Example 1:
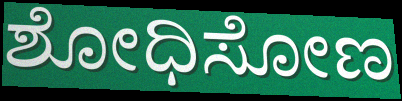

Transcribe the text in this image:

ಶೋಧಿಸೋಣ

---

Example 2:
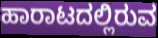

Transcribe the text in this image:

ಹಾರಾಟದಲ್ಲಿರುವ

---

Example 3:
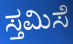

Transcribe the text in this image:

ಸ್ತಮಿಸೆ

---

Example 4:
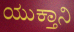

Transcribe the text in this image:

ಯುಕ್ತಾನಿ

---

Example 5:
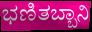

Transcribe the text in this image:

ಭಣಿತಬ್ಬಾನಿ